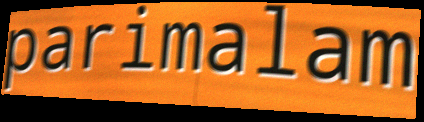
parimalam